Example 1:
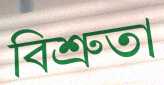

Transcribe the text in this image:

বিশ্রুতা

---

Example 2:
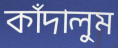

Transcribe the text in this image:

কাঁদালুম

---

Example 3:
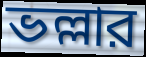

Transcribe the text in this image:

ভল্লার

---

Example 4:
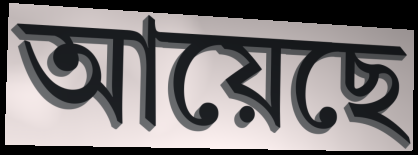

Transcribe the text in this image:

আয়েছে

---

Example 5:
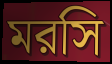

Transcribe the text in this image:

মরসি